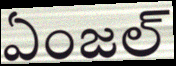
ఏంజల్